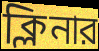
ক্লিনার